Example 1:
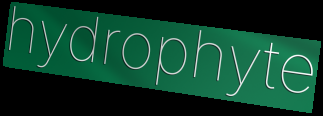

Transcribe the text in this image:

hydrophyte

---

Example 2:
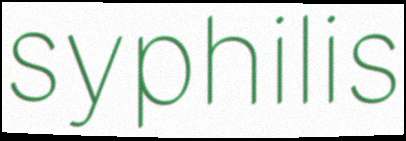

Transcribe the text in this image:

syphilis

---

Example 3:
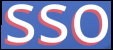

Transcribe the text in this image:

sso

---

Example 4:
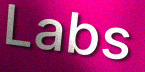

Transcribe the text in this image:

Labs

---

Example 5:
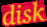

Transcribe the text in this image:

disk